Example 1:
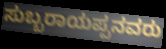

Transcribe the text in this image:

ಸುಬ್ಬರಾಯಪ್ಪನವರು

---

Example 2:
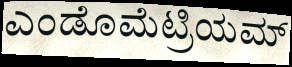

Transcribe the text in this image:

ಎಂಡೊಮೆಟ್ರಿಯಮ್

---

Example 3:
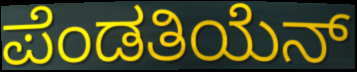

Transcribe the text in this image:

ಪೆಂಡತಿಯೆನ್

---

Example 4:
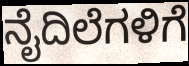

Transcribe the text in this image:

ನೈದಿಲೆಗಳಿಗೆ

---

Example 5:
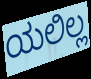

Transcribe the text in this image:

ಯಲಿಲ್ಲ